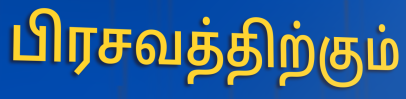
பிரசவத்திற்கும்